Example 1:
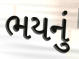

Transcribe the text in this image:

ભયનું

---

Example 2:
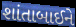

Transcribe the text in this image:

શાંતાબાઈને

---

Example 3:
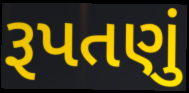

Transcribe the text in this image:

રૂપતણું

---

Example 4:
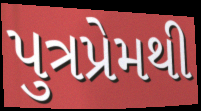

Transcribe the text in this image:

પુત્રપ્રેમથી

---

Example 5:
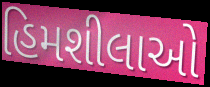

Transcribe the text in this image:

હિમશીલાઓ